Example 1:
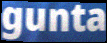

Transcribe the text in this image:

gunta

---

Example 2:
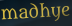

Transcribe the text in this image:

madhye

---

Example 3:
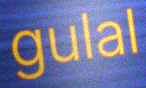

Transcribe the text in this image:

gulal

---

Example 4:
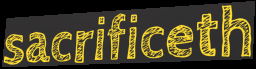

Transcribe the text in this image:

sacrificeth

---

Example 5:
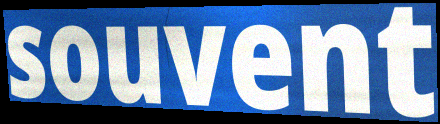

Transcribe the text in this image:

souvent